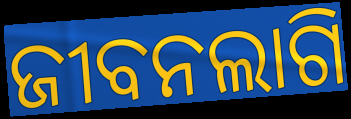
ଜୀବନଲାଗି